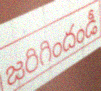
జరిగిందండీ